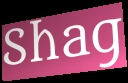
Shag